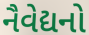
નૈવેદ્યનો